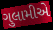
ગુલામીએ